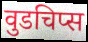
वुडचिप्स